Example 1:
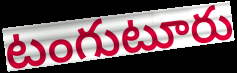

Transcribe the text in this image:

టంగుటూరు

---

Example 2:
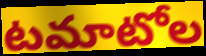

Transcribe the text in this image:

టమాటోల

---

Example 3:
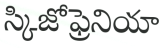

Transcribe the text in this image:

స్కిజోఫ్రెనియా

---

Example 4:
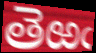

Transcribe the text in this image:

తెఱఁ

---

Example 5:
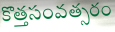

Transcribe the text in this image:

కొత్తసంవత్సరం